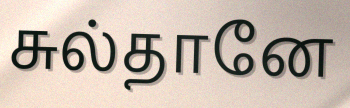
சுல்தானே